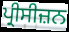
ਪ੍ਰੀਸੀਜ਼ਨ